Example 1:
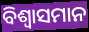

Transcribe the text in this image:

ବିଶ୍ଵାସମାନ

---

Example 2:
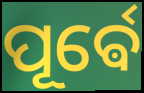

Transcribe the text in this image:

ପୂର୍ଵେ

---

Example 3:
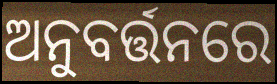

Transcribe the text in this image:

ଅନୁବର୍ତ୍ତନରେ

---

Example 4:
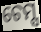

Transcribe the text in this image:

ଚେମ୍ସ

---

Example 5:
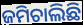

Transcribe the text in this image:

ଜମିଚାଲିଛି